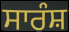
ਸਾਰੰਸ਼